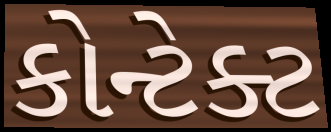
કોન્ટેક્ટ